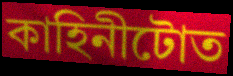
কাহিনীটোত